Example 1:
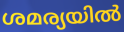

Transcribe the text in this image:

ശമര്യയിൽ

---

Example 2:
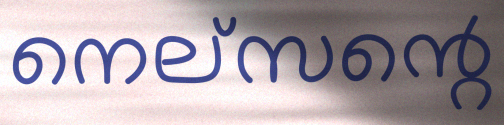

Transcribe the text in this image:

നെല്സന്റെ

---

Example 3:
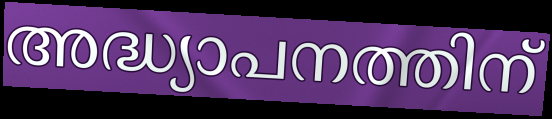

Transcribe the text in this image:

അദ്ധ്യാപനത്തിന്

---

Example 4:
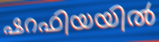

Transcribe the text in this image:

ഷറഫിയയിൽ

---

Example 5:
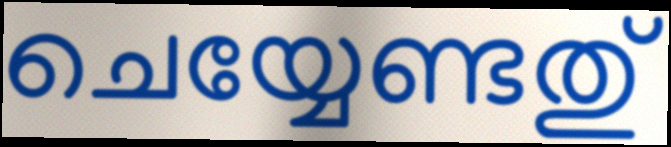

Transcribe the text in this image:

ചെയ്യേണ്ടതു്